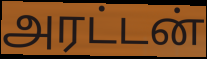
அரட்டன்